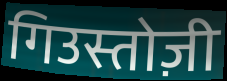
गिउस्तोज़ी